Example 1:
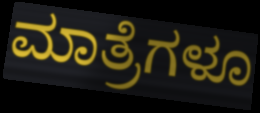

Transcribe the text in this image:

ಮಾತ್ರೆಗಳೂ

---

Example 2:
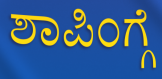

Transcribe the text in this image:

ಶಾಪಿಂಗ್ಗೆ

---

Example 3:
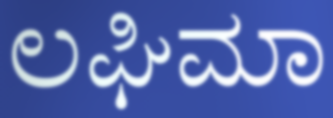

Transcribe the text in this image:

ಲಘಿಮಾ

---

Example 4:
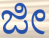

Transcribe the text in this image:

ಜೀ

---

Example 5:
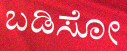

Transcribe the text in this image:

ಬಡಿಸೋ